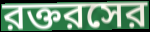
রক্তরসের